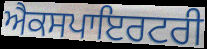
ਐਕਸਪਾਇਰਟਰੀ